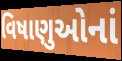
વિષાણુઓનાં